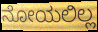
ನೋಯಲಿಲ್ಲ